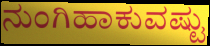
ನುಂಗಿಹಾಕುವಷ್ಟು